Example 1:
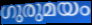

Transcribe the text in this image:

ഗുരുമയം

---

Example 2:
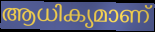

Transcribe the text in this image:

ആധിക്യമാണ്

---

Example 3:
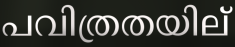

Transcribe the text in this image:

പവിത്രതയില്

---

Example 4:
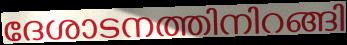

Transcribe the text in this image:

ദേശാടനത്തിനിറങ്ങി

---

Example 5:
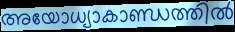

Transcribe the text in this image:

അയോധ്യാകാണ്ഡത്തിൽ